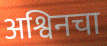
अश्विनचा